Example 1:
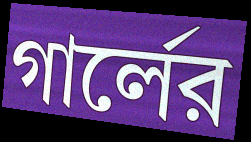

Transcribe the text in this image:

গার্লের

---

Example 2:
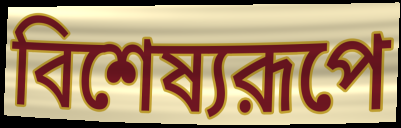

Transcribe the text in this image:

বিশেষ্যরূপে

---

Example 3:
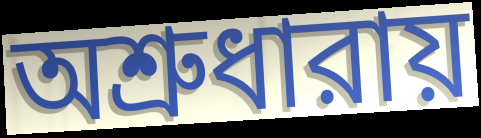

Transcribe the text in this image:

অশ্রুধারায়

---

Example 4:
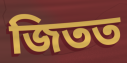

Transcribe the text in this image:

জিতত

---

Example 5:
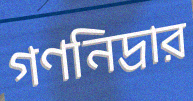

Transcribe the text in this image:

গণনিদ্রার